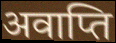
अवाप्ति